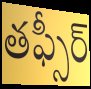
తఫ్సీర్